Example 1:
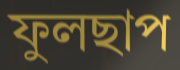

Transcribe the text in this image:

ফুলছাপ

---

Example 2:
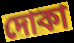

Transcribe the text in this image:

দোকা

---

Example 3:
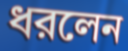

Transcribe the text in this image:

ধরলেন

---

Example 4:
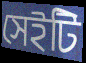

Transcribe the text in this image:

সেইটি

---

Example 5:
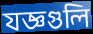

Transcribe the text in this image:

যজ্ঞগুলি